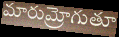
మారుమ్రోగుతూ